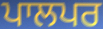
ਪਾਲਪਰ